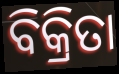
ବିକ୍ରିତା